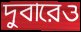
দুবারেও